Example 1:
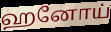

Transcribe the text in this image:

ஹனோய்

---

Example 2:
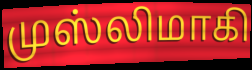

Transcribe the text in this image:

முஸ்லிமாகி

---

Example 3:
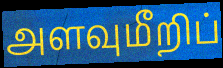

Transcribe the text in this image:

அளவுமீறிப்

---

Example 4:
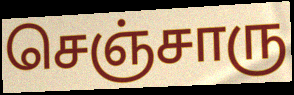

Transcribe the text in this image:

செஞ்சாரு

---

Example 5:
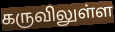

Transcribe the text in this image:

கருவிலுள்ள